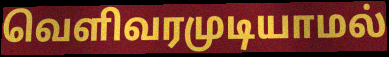
வெளிவரமுடியாமல்